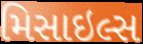
મિસાઇલ્સ